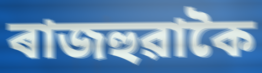
ৰাজহুৱাকৈ